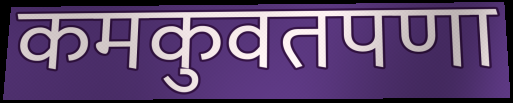
कमकुवतपणा